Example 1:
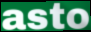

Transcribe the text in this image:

asto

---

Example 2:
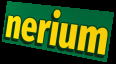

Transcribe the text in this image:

nerium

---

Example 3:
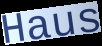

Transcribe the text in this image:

Haus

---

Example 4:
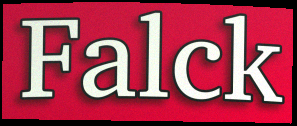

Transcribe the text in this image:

Falck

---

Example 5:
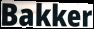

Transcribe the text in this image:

Bakker